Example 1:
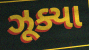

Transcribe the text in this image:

ઝૂક્યા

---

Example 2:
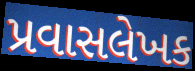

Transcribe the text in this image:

પ્રવાસલેખક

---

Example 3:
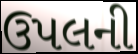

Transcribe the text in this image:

ઉપલની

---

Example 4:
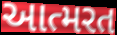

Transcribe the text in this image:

આત્મરત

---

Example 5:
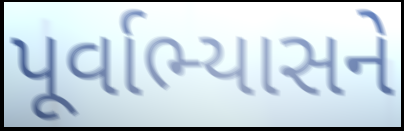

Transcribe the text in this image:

પૂર્વાભ્યાસને